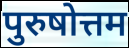
पुरुषोत्तम